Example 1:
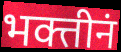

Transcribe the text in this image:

भक्तीनं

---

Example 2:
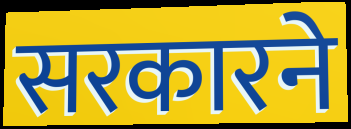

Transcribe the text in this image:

सरकारने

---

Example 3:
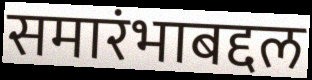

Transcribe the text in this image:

समारंभाबद्दल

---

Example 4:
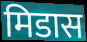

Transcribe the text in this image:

मिडास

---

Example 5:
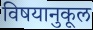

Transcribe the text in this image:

विषयानुकूल